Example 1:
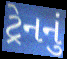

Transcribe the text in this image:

ટ્રેનનું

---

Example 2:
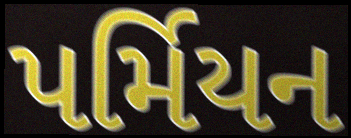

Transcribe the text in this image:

પર્મિયન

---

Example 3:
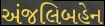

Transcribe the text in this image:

અંજલિબહેન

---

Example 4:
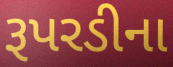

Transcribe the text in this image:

રૂપરડીના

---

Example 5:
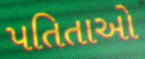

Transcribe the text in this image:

પતિતાઓ